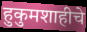
हुकुमशाहीचे